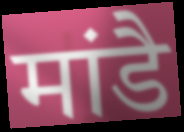
मांडै